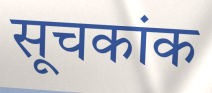
सूचकांक